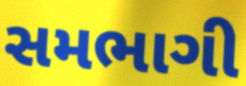
સમભાગી